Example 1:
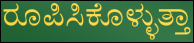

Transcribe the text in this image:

ರೂಪಿಸಿಕೊಳ್ಳುತ್ತಾ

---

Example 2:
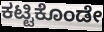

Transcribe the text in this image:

ಕಟ್ಟಿಕೊಂಡೇ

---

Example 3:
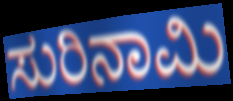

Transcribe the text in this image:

ಸುರಿನಾಮಿ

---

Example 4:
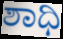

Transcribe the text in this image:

ಶಾಧಿ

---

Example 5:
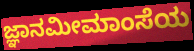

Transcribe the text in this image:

ಜ್ಞಾನಮೀಮಾಂಸೆಯ